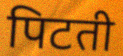
पिटती